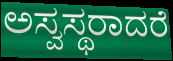
ಅಸ್ವಸ್ಥರಾದರೆ